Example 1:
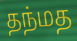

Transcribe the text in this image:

தந்மத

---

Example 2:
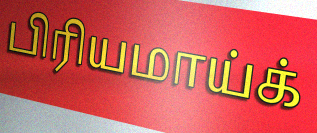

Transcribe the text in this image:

பிரியமாய்க்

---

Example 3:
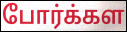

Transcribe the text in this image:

போர்க்கள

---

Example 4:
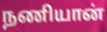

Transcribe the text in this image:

நணியான்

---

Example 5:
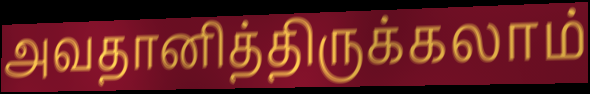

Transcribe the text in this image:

அவதானித்திருக்கலாம்